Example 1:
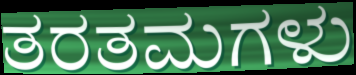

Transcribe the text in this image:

ತರತಮಗಳು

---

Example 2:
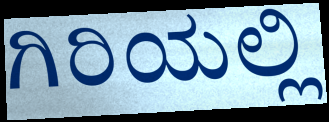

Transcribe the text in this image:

ಗಿರಿಯಲ್ಲಿ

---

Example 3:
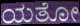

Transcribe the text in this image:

ಯತೋ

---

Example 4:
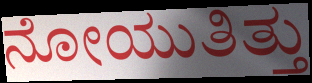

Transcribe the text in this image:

ನೋಯುತಿತ್ತು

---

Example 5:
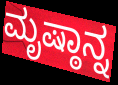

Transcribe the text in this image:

ಮೃಷ್ಠಾನ್ನ